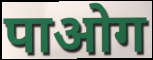
पाओग